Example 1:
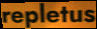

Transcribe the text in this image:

repletus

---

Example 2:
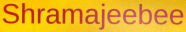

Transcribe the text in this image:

Shramajeebee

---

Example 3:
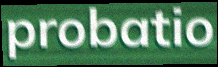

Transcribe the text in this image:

probatio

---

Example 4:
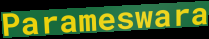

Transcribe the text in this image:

Parameswara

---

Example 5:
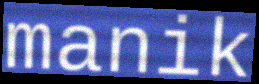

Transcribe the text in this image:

manik